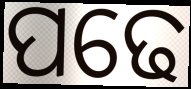
ପଢେ